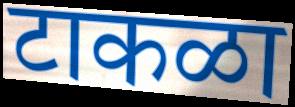
टाकळा